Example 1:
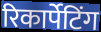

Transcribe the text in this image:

रिकार्पेटिंग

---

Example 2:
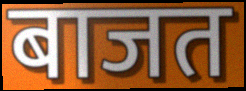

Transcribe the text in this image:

बाजत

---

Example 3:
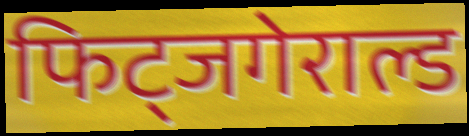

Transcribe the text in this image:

फिट्जगेराल्ड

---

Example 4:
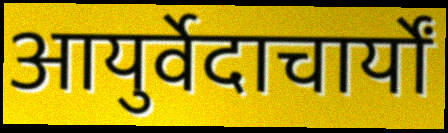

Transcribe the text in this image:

आयुर्वेदाचार्यों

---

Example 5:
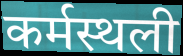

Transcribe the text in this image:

कर्मस्थली